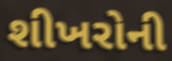
શીખરોની